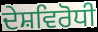
ਦੇਸ਼ਵਿਰੋਧੀ